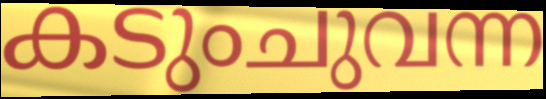
കടുംചുവന്ന